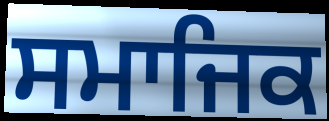
ਸਮਾਜਿਕ